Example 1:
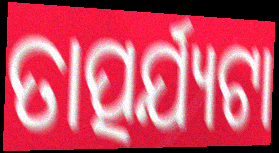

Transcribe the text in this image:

ତାତ୍ପର୍ଯ୍ୟଟା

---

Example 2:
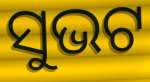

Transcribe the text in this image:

ସୁଭଟ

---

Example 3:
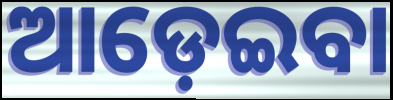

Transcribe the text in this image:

ଆଡ଼େଇବା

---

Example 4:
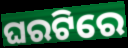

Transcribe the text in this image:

ଘରଟିରେ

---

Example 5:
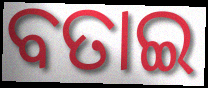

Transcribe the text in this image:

ବତାଇ